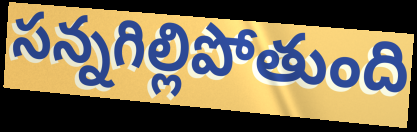
సన్నగిల్లిపోతుంది